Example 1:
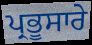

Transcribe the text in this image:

ਪ੍ਰਭੂਸਾਰੇ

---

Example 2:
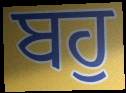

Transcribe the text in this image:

ਬਹੁ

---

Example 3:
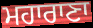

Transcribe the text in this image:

ਮਹਾਰਾਣਾ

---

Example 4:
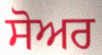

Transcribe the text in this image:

ਸੋਅਰ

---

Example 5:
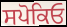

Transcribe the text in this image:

ਸਪੋਕਿਓ